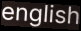
english